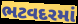
ભટવદરમાં